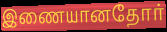
இணையானதோர்